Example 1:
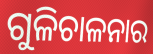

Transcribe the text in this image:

ଗୁଳିଚାଳନାର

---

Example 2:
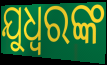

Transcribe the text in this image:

ଯୁଧ୍ୱରଙ୍କ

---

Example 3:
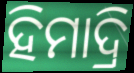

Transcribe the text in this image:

ହିମାଦ୍ରି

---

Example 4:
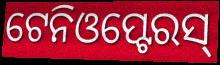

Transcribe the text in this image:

ଟେନିଓପ୍ଟେରସ୍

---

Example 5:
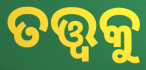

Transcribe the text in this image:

ତତ୍ତ୍ଵକୁ